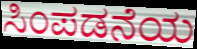
ಸಿಂಪಡನೆಯ